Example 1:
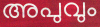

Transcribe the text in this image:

അപുവും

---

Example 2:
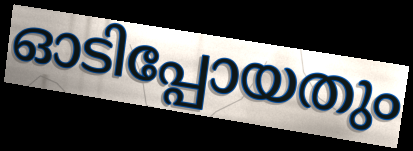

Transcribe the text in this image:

ഓടിപ്പോയതും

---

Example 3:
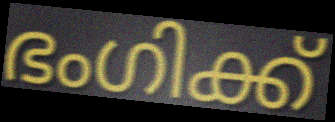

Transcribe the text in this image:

ഭംഗിക്ക്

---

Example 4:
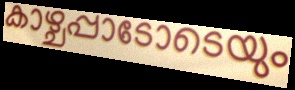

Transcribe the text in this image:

കാഴ്ചപ്പാടോടെയും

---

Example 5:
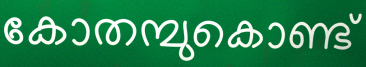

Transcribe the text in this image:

കോതമ്പുകൊണ്ട്